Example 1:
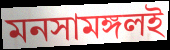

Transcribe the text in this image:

মনসামঙ্গলই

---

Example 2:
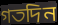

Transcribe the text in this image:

গতদিন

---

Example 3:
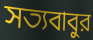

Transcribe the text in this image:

সত্যবাবুর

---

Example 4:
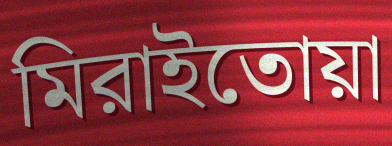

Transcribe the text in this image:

মিরাইতোয়া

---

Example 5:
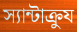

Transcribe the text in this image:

স্যান্টাক্রুয